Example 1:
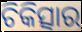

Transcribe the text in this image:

ଚିକିତ୍ସାର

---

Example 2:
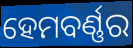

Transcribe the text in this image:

ହେମବର୍ଣ୍ଣର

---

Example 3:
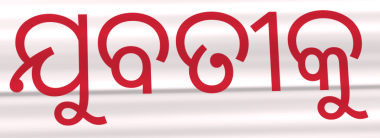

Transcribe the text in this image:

ଯୁବତୀକୁ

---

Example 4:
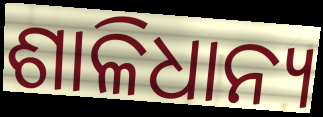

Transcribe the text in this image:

ଶାଳିଧାନ୍ୟ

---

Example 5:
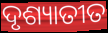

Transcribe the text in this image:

ଦୃଶ୍ୟାତୀତ